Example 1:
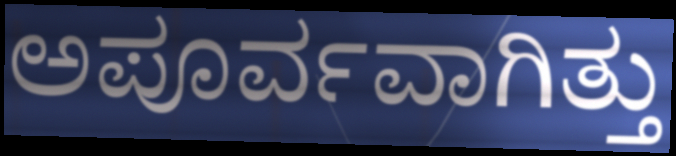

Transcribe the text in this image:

ಅಪೂರ್ವವಾಗಿತ್ತು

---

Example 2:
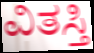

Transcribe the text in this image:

ವಿತಸ್ತಿ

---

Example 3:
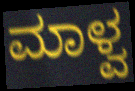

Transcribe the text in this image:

ಮಾಳ್ವ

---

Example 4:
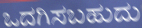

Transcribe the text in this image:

ಒದಗಿಸಬಹುದು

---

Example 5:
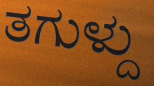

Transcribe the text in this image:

ತಗುಳ್ದು